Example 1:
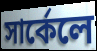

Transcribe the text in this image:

সার্কেলে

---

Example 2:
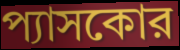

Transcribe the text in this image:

প্যাসকোর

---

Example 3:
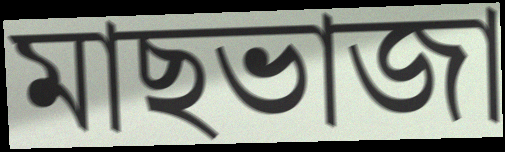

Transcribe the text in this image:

মাছভাজা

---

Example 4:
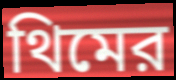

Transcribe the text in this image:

থিমের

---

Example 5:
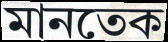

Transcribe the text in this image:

মানতেক